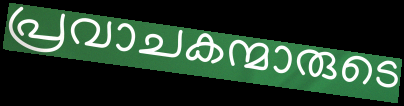
പ്രവാചകന്മാരുടെ